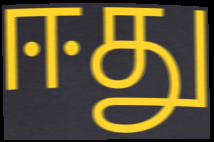
ஈது